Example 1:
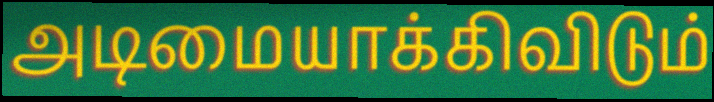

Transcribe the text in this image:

அடிமையாக்கிவிடும்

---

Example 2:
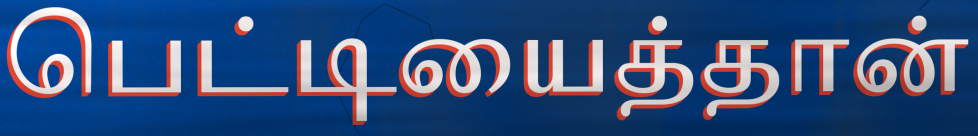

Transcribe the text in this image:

பெட்டியைத்தான்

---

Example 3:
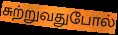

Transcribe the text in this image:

சுற்றுவதுபோல்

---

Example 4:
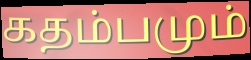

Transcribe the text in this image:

கதம்பமும்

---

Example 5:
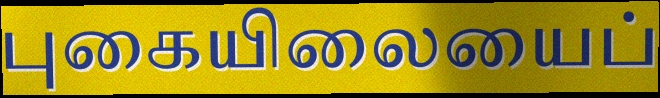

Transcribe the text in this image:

புகையிலையைப்